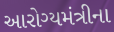
આરોગ્યમંત્રીના